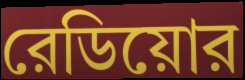
রেডিয়োর